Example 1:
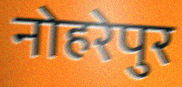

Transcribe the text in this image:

नोहरेपुर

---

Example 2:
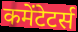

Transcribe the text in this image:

कमेंटेटर्स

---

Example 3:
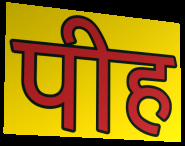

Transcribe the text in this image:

पीह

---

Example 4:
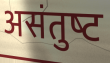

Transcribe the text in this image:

असंतुष्‍ट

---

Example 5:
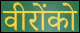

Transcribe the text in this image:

वीरोंको